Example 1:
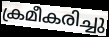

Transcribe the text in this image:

ക്രമീകരിച്ചു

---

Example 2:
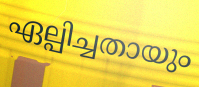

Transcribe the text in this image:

ഏല്പിച്ചതായും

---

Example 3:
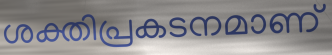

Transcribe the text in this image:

ശക്തിപ്രകടനമാണ്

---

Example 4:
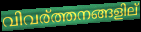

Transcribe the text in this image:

വിവര്ത്തനങ്ങളില്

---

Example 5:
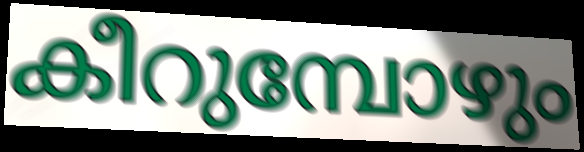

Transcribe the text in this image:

കീറുമ്പോഴും